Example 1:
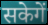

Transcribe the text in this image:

सकेगें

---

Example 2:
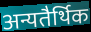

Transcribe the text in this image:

अन्यतैर्थिक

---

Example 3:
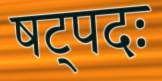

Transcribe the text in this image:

षट्पदः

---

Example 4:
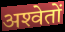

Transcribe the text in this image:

अश्‍वेतों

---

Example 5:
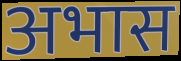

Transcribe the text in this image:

अभास